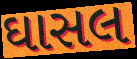
ઘાસલ